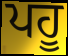
ਪਹੂ